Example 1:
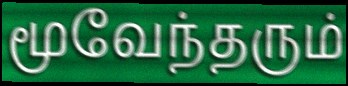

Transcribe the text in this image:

மூவேந்தரும்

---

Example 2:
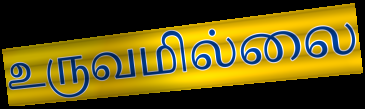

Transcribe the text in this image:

உருவமில்லை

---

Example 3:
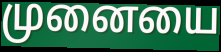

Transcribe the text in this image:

முனையை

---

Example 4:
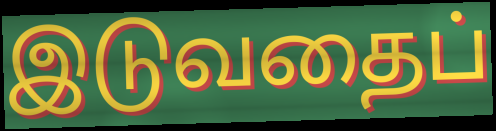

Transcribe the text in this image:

இடுவதைப்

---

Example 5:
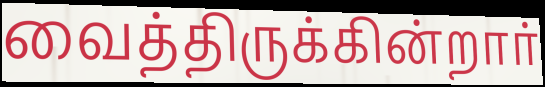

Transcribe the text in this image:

வைத்திருக்கின்றார்